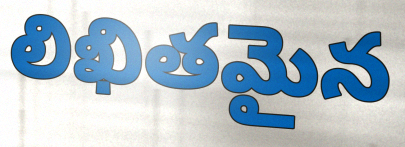
లిఖితమైన